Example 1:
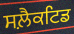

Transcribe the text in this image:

ਸਲ਼ੈਕਟਿਡ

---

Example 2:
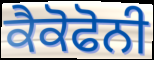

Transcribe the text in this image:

ਕੈਕੋਫੋਨੀ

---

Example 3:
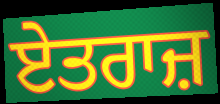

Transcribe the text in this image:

ਏਤਰਾਜ਼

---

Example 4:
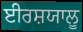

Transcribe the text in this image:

ਈਰਸ਼ਯਾਲੂ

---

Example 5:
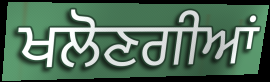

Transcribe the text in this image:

ਖਲੋਣਗੀਆਂ